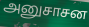
அனுசாசன